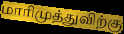
மாரிமுத்துவிற்கு